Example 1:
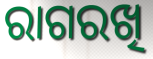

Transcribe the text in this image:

ରାଗରଖି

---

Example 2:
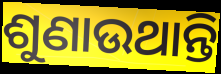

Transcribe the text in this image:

ଶୁଣାଉଥାନ୍ତି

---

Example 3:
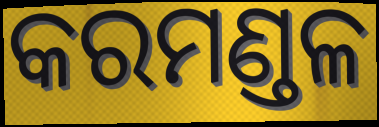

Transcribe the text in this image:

କରମଣ୍ଡଳ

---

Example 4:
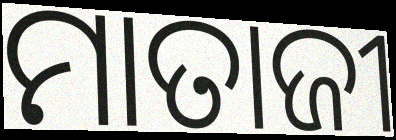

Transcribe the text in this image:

ମାତାଜୀ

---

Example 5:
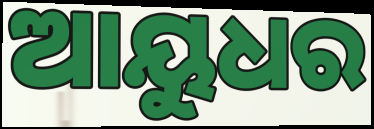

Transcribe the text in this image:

ଆୟୁଧର